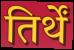
तिर्थें